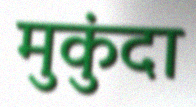
मुकुंदा